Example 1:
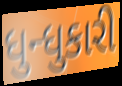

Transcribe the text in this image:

ધુન્ધુકારી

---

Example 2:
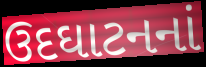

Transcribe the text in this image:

ઉદઘાટનનાં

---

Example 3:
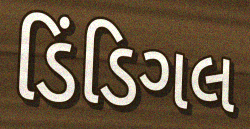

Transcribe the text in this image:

ડિંડિગલ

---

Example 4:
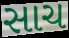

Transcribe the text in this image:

સાચ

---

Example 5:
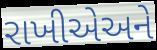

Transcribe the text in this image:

રાખીએઅને